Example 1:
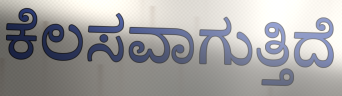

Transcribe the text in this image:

ಕೆಲಸವಾಗುತ್ತಿದೆ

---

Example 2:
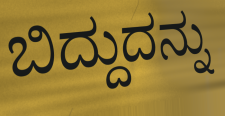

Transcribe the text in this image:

ಬಿದ್ದುದನ್ನು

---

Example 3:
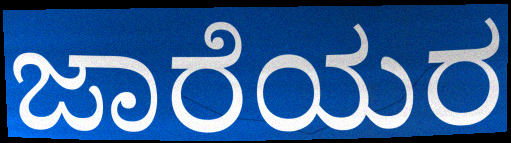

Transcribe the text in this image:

ಜಾರೆಯರ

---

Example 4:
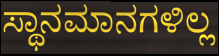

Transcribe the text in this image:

ಸ್ಥಾನಮಾನಗಳಿಲ್ಲ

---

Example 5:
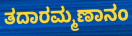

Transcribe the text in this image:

ತದಾರಮ್ಮಣಾನಂ